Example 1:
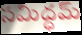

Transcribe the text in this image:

సమిద్ధమ్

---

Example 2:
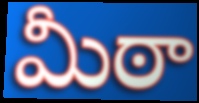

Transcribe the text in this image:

మీఠా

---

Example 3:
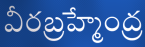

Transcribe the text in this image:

వీరబ్రహ్మేంద్ర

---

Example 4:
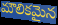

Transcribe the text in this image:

మౌలికమైన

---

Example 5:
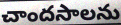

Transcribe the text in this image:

చాందసాలను